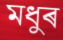
মধুৰ